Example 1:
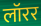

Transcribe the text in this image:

लॉरर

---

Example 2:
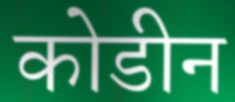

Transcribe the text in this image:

कोडीन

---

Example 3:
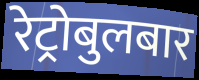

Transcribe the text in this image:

रेट्रोबुलबार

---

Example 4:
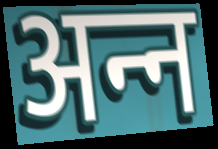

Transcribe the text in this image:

अन्न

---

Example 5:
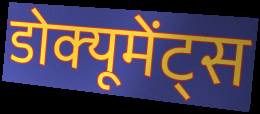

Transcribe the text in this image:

डोक्यूमेंट्स